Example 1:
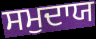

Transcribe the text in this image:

ਸਮੁਦਾਯ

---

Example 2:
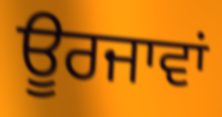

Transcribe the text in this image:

ਊਰਜਾਵਾਂ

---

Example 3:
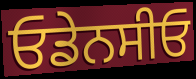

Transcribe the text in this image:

ਓਡੇਨਸੀਓ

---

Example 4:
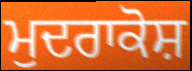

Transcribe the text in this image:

ਮੁਦਰਾਕੋਸ਼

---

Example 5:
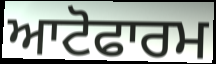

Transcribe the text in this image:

ਆਟੋਫਾਰਮ